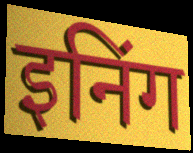
इनिंग